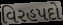
વિરહપદો